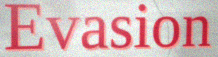
Evasion